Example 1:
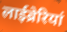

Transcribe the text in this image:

लाईब्रेरियां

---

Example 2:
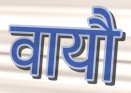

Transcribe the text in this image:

वायौ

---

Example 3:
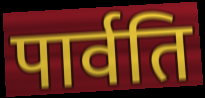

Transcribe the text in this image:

पार्वति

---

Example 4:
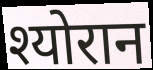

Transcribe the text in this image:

श्योरान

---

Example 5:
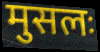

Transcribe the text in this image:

मुसलः